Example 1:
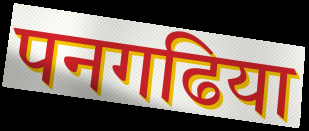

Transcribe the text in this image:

पनगढिया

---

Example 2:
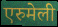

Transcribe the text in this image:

एरुमेली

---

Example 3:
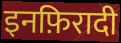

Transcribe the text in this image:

इनफ़िरादी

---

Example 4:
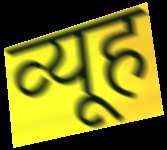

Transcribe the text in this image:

व्‍यूह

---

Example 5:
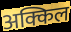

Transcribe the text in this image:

अक्किल